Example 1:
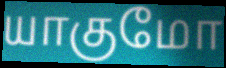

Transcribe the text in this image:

யாகுமோ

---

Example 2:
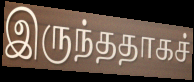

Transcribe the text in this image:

இருந்ததாகச்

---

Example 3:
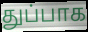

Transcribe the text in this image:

துப்பாக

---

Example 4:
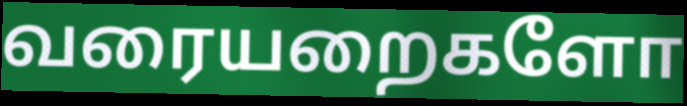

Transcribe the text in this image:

வரையறைகளோ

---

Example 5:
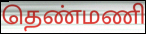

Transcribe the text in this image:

தெண்மணி